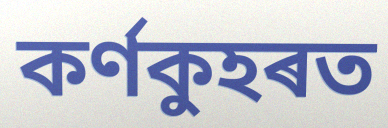
কৰ্ণকুহৰত